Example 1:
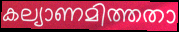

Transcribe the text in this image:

കല്യാണമിത്തതാ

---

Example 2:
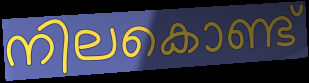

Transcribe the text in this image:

നിലകൊണ്ട്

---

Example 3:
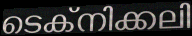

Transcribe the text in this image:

ടെക്‌നിക്കലി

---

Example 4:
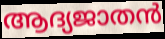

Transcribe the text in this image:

ആദ്യജാതൻ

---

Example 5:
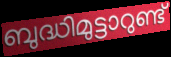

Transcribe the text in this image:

ബുദ്ധിമുട്ടാറുണ്ട്